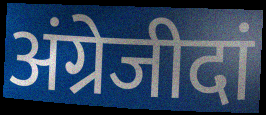
अंग्रेजीदां